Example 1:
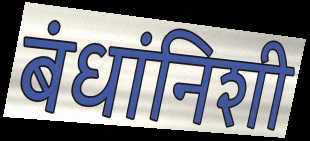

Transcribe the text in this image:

बंधांनिशी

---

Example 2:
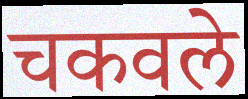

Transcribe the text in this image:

चकवले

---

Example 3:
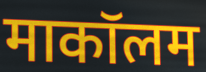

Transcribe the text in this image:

माकॉलम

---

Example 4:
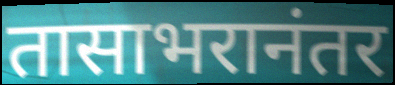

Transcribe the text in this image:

तासाभरानंतर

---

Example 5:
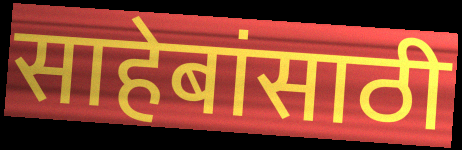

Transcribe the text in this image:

साहेबांसाठी